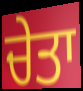
ਚੇਤਾ